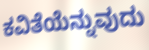
ಕವಿತೆಯೆನ್ನುವುದು